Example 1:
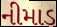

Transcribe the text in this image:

નીમાડ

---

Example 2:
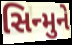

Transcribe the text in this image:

સિન્મુને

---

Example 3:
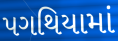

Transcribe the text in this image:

પગથિયામાં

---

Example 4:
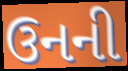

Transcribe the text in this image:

ઉનની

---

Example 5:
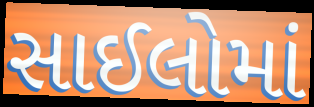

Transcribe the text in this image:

સાઈલોમાં